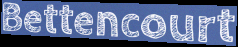
Bettencourt